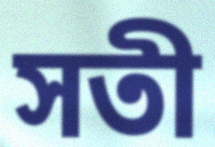
সতী